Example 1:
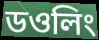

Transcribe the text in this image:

ডওলিং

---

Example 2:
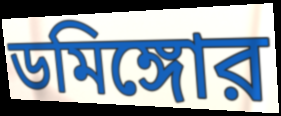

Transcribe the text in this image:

ডমিঙ্গোর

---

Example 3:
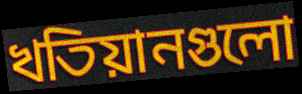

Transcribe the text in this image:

খতিয়ানগুলো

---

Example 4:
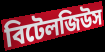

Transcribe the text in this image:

বিটেলজিউস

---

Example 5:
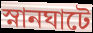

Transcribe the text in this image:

স্নানঘাটে